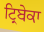
ਟ੍ਰਿਬੇਕਾ